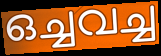
ഒച്ചവച്ച